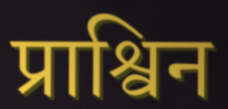
प्राश्विन